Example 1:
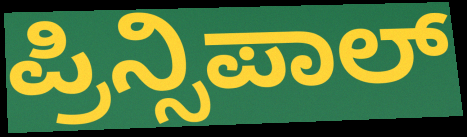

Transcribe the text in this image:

ಪ್ರಿನ್ಸಿಪಾಲ್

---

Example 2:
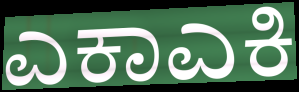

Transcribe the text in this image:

ಎಕಾಎಕಿ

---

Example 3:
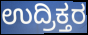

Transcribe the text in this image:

ಉದ್ರಿಕ್ತರ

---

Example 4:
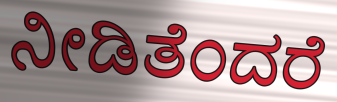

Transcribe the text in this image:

ನೀಡಿತೆಂದರೆ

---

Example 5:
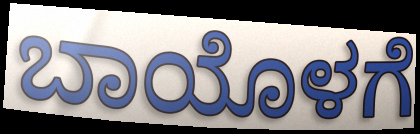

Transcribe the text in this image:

ಬಾಯೊಳಗೆ